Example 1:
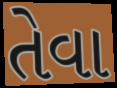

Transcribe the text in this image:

તેવા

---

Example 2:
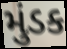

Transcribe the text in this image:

મુંડક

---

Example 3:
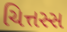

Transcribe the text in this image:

ચિત્તસ્સ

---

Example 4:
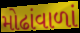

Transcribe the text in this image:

મોઢાંવાળાં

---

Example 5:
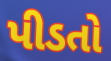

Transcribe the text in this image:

પીડતો